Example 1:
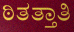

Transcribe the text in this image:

ಠಿತತ್ತಾತಿ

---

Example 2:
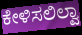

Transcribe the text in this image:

ಕೇಳಿಸಲಿಲ್ವಾ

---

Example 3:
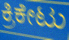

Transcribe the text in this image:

ಕ್ರಿಕೇಟು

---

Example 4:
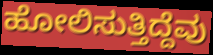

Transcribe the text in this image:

ಹೋಲಿಸುತ್ತಿದ್ದೆವು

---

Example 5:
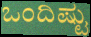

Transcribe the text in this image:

ಒಂದಿಷ್ಟು